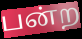
பன்ற